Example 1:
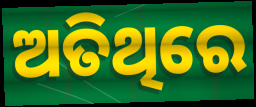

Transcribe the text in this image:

ଅତିଥିରେ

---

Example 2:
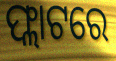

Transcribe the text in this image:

ଫ୍ଲାଟରେ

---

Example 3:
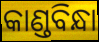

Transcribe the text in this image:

କାଣ୍ଡବିନ୍ଧା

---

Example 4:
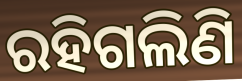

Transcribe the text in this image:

ରହିଗଲିଣି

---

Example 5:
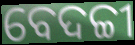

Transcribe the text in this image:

ବେଦଚ୍ଚୀ